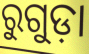
ରୁଗୁଡ଼ା